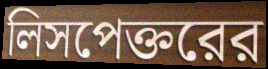
লিসপেক্তরের